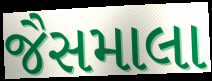
જૈસમાલા